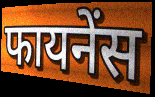
फायनेंस